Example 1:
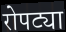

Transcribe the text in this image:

रोपट्या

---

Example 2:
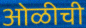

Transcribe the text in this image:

ओळीची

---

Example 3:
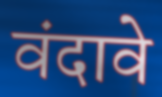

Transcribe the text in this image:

वंदावे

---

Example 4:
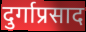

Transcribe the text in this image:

दुर्गाप्रसाद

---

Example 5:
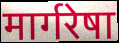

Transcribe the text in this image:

मार्गरेषा